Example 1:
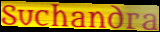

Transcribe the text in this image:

Suchandra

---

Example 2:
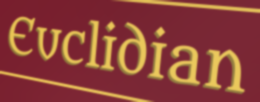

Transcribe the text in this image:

Euclidian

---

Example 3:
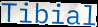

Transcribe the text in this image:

Tibial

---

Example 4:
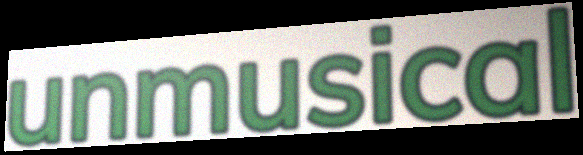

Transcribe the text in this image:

unmusical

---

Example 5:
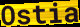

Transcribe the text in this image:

Ostia